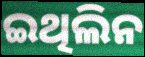
ଇଥିଲିନ